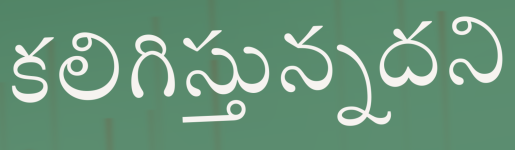
కలిగిస్తున్నదని